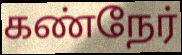
கண்நேர்